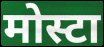
मोस्टा